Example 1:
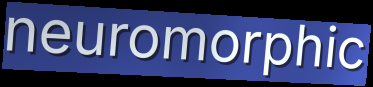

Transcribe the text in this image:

neuromorphic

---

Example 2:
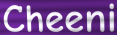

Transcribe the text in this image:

Cheeni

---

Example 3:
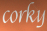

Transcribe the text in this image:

corky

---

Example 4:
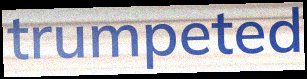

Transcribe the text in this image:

trumpeted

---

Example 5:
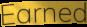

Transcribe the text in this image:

Earned